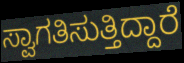
ಸ್ವಾಗತಿಸುತ್ತಿದ್ದಾರೆ